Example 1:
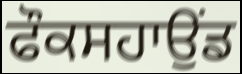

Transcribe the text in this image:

ਫੌਕਸਹਾਉਂਡ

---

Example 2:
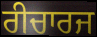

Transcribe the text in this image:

ਰੀਚਾਰਜ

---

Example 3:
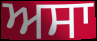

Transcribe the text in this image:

ਅਸਾ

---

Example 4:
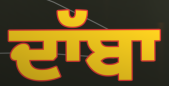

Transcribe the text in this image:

ਦਾੱਬਾ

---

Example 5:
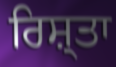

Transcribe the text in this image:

ਰਿਸ਼੍ਤਾ